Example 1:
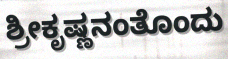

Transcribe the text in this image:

ಶ್ರೀಕೃಷ್ಣನಂತೊಂದು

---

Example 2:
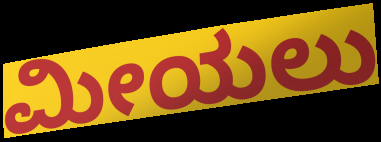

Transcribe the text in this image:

ಮೀಯಲು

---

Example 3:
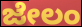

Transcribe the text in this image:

ಜೇಲಂ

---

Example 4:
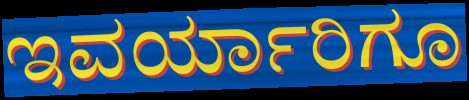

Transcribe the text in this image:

ಇವರ್ಯಾರಿಗೂ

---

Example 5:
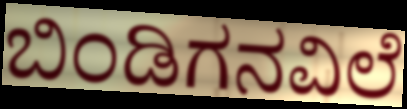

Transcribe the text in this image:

ಬಿಂಡಿಗನವಿಲೆ